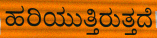
ಹರಿಯುತ್ತಿರುತ್ತದೆ